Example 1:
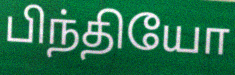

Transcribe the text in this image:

பிந்தியோ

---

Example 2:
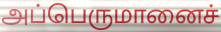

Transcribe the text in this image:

அப்பெருமானைச்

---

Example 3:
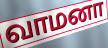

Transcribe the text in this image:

வாமனா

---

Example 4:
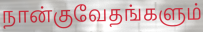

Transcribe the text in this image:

நான்குவேதங்களும்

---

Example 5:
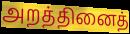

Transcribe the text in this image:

அறத்தினைத்